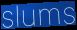
slums